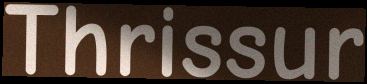
Thrissur